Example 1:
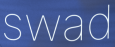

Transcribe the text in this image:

swad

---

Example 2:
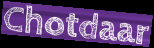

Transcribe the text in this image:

Chotdaar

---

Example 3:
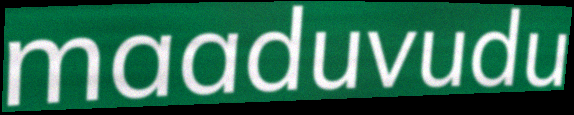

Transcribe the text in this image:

maaduvudu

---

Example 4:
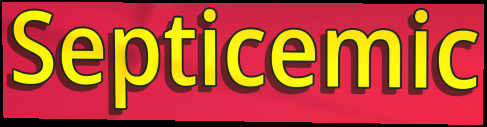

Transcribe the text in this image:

Septicemic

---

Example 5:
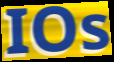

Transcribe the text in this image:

IOs